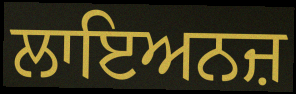
ਲਾਇਅਨਜ਼